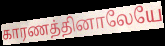
காரணத்தினாலேயே